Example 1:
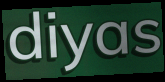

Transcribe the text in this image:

diyas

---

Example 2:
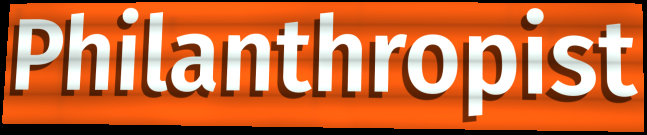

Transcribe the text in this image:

Philanthropist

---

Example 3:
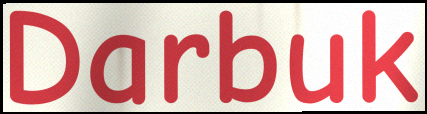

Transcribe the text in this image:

Darbuk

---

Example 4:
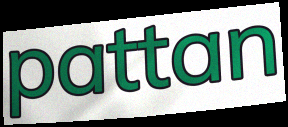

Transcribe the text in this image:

pattan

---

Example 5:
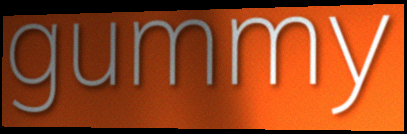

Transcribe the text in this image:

gummy